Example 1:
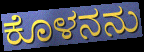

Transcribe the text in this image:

ಕೊಳನನು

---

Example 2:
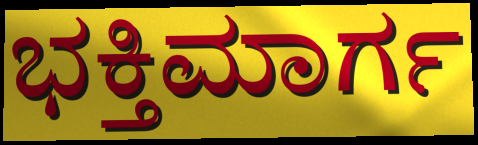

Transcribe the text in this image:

ಭಕ್ತಿಮಾರ್ಗ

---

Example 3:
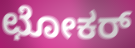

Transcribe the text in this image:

ಛೋಕರ್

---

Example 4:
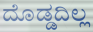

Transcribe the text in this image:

ದೊಡ್ಡದಿಲ್ಲ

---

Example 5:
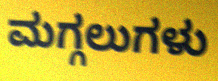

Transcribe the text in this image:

ಮಗ್ಗಲುಗಳು